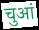
चुआं